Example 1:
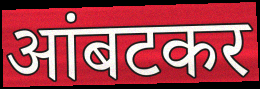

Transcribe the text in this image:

आंबटकर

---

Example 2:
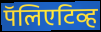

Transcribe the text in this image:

पॅलिएटिव्ह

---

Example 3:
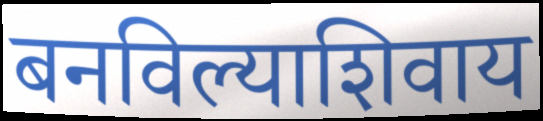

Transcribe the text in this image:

बनविल्याशिवाय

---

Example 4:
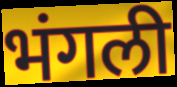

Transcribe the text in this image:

भंगली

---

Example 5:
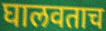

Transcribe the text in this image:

घालवताच